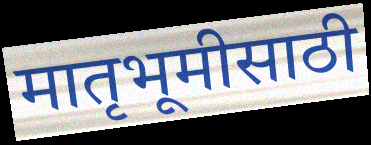
मातृभूमीसाठी